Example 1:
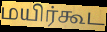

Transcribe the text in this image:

மயிர்கூட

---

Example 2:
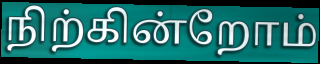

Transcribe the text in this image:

நிற்கின்றோம்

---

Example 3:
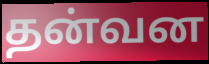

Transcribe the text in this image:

தன்வன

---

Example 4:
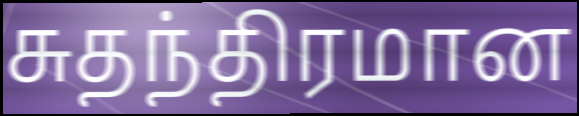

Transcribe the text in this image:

சுதந்திரமான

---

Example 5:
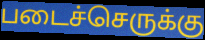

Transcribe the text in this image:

படைச்செருக்கு